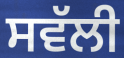
ਸਵੱਲੀ